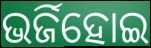
ଭର୍ଜିହୋଇ